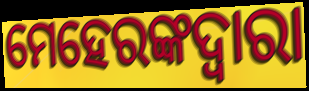
ମେହେରଙ୍କଦ୍ଵାରା